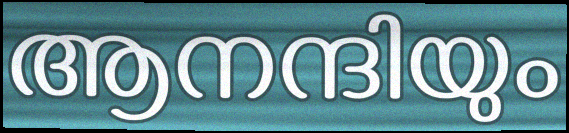
ആനന്ദിയും